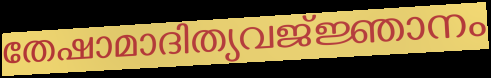
തേഷാമാദിത്യവജ്ജ്ഞാനം